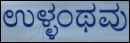
ಉಳ್ಳಂಥವು